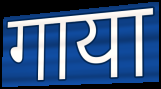
गाया